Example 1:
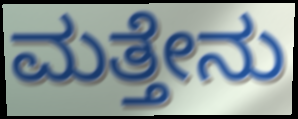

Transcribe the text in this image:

ಮತ್ತೇನು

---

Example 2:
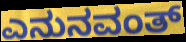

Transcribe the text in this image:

ಎನುನವಂತ್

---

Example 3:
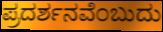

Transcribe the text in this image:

ಪ್ರದರ್ಶನವೆಂಬುದು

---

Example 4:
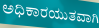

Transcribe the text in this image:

ಅಧಿಕಾರಯುತವಾಗಿ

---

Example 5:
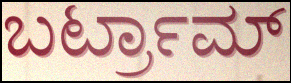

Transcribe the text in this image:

ಬರ್ಟ್ರಾಮ್